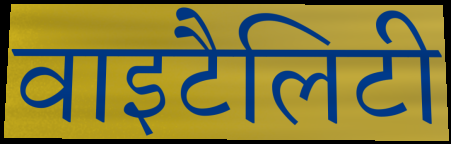
वाइटैलिटी